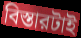
বিস্তারটাই